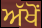
ਅੱਖੋਂ